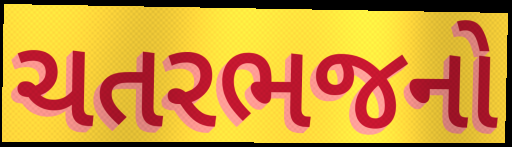
ચતરભજનો